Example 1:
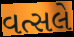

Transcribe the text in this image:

વત્સલે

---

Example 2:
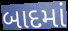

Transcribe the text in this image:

બાદમાં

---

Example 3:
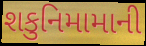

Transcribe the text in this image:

શકુનિમામાની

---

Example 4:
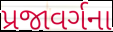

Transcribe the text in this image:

પ્રજાવર્ગના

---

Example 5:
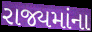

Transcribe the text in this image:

રાજ્યમાંના